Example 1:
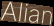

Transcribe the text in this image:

Alian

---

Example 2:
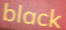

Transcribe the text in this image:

black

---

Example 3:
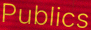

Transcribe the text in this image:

Publics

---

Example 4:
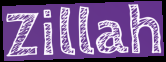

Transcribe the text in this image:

Zillah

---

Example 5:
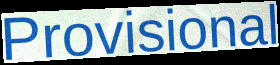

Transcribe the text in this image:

Provisional